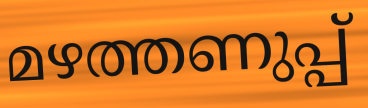
മഴത്തണുപ്പ്